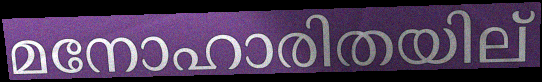
മനോഹാരിതയില്